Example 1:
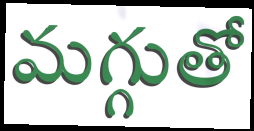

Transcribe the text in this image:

మగ్గుతో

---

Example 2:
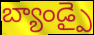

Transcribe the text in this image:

బ్యాండ్పై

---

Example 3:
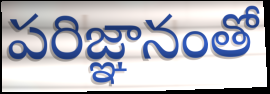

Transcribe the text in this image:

పరిజ్ఞానంతో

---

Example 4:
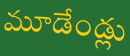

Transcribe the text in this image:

మూడేండ్లు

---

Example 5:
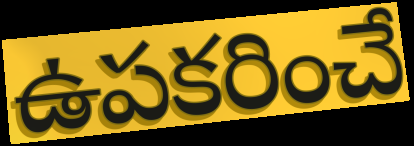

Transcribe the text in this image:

ఉపకరించే